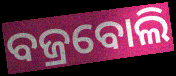
ବଜ୍ରବୋଲି